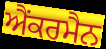
ਐਂਕਰਮੈਨ